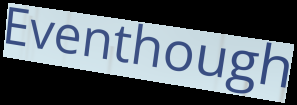
Eventhough